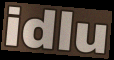
idlu